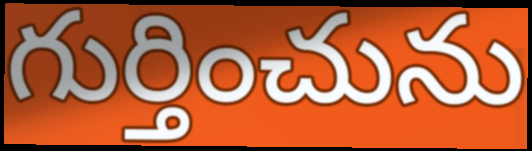
గుర్తించును